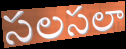
సలసలా